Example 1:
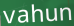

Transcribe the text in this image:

vahun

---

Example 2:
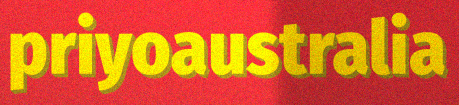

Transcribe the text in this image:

priyoaustralia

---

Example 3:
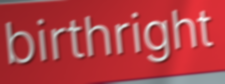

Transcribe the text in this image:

birthright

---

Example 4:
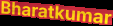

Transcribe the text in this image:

Bharatkumar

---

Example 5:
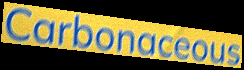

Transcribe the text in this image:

Carbonaceous